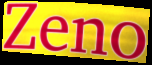
Zeno